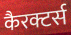
कैरक्टर्स